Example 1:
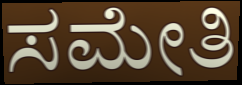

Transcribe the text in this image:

ಸಮೇತಿ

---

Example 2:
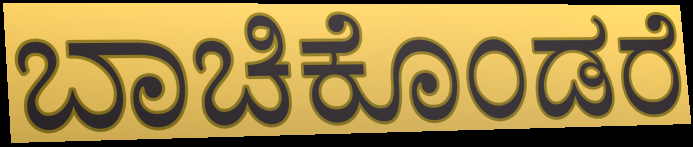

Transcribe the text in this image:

ಬಾಚಿಕೊಂಡರೆ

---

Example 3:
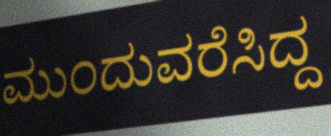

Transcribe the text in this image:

ಮುಂದುವರೆಸಿದ್ದ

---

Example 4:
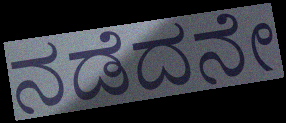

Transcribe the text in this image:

ನಡೆದನೇ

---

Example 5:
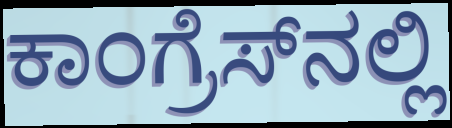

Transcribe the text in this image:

ಕಾಂಗ್ರೆಸ್‌ನಲ್ಲಿ